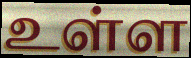
உள்ள